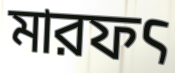
মারফৎ